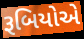
રૂબિયોએ